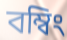
বম্বিং